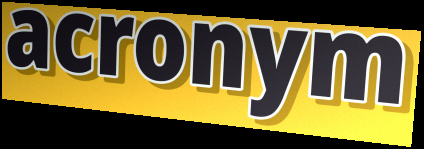
acronym